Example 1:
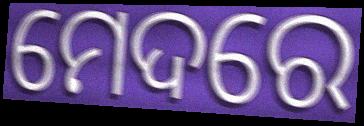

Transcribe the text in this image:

ମେଦରେ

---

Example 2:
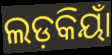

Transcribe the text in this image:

ଲଡ଼କିୟାଁ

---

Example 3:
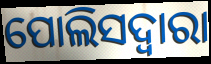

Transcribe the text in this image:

ପୋଲିସଦ୍ୱାରା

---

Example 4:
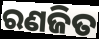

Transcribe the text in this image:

ରଣଜିତ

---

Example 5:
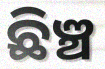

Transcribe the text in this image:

ଛିଞ୍ଚ